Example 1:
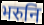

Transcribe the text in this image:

भरुनि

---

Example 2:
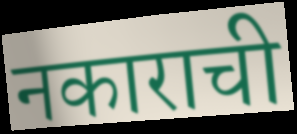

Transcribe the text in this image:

नकाराची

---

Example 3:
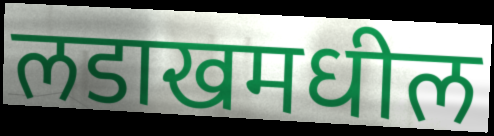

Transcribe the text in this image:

लडाखमधील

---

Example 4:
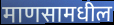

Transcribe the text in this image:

माणसामधील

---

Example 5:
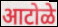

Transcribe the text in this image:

आटोळे